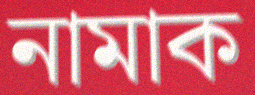
নামাক